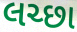
લચ્છા